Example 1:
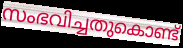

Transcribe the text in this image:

സംഭവിച്ചതുകൊണ്ട്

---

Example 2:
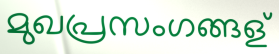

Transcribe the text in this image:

മുഖപ്രസംഗങ്ങള്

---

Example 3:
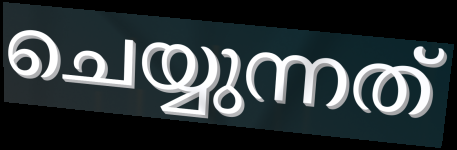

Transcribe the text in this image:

ചെയ്യുന്നത്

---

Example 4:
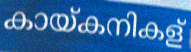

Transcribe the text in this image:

കായ്കനികള്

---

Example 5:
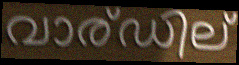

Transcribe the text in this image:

വാര്ഡില്